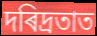
দৰিদ্ৰতাত